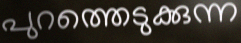
പുറത്തെടുക്കുന്ന